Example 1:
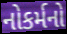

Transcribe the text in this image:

નોકર્મનો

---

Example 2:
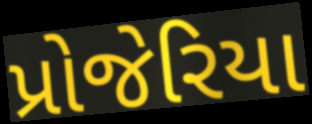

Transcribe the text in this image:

પ્રોજેરિયા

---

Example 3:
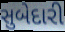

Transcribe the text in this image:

સુબેદારી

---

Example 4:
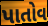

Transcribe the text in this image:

પાતોવ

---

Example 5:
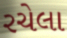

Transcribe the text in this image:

રચેલા